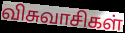
விசுவாசிகள்